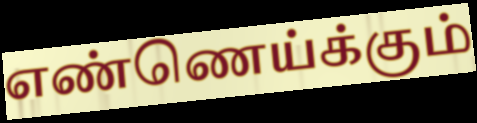
எண்ணெய்க்கும்